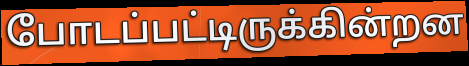
போடப்பட்டிருக்கின்றன